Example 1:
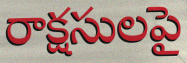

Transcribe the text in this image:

రాక్షసులపై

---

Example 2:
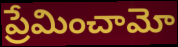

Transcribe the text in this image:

ప్రేమించామో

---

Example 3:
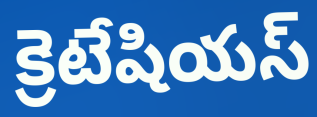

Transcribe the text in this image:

క్రెటేషియస్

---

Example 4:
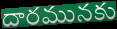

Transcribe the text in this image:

దారమునకు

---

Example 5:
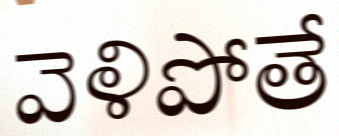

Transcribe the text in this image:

వెళిపోతే